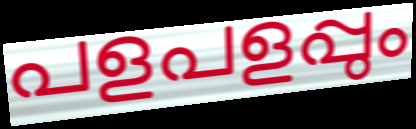
പളപളപ്പും